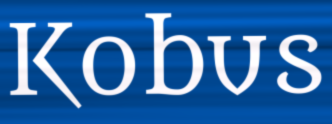
Kobus